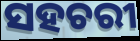
ସହଚରୀ